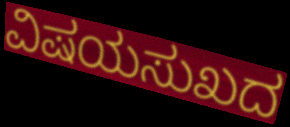
ವಿಷಯಸುಖದ